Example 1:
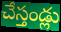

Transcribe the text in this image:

చేస్తండ్లు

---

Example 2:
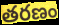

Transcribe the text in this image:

తరణం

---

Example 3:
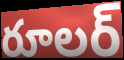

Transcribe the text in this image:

రూలర్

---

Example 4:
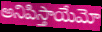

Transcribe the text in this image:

అనిపిస్తాయేమో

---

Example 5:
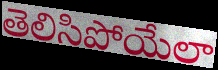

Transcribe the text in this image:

తెలిసిపోయేలా